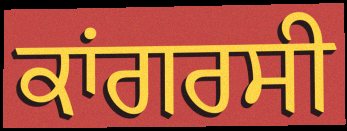
ਕਾਂਗਰਸੀ